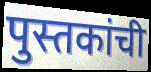
पुस्तकांची